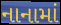
નાનામાં